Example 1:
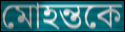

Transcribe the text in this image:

মোহন্তকে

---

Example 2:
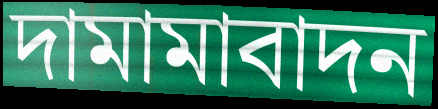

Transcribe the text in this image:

দামামাবাদন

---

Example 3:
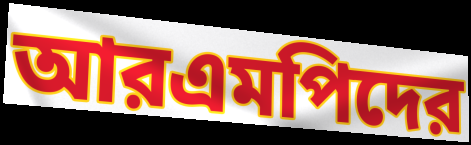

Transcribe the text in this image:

আরএমপিদের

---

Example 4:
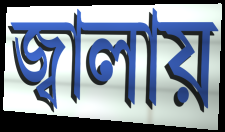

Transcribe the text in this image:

জ্বালায়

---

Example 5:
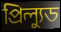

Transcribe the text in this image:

প্রিল্যুড